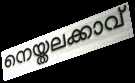
നെയ്തലക്കാവ്